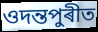
ওদন্তপুৰীত